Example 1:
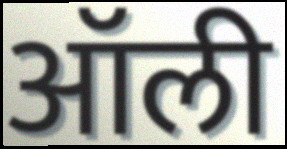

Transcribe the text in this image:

ऑली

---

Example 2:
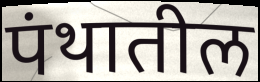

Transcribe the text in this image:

पंथातील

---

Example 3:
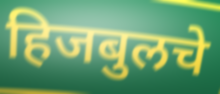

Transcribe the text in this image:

हिजबुलचे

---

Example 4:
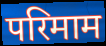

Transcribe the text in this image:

परिमाम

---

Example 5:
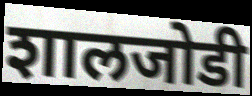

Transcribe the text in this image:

शालजोडी